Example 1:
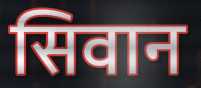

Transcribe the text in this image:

सिवान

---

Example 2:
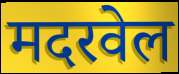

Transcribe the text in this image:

मदरवेल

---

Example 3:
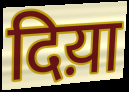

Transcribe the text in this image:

दिय़ा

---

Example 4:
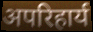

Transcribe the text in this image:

अपरिहार्य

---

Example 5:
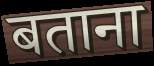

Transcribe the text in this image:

बताना